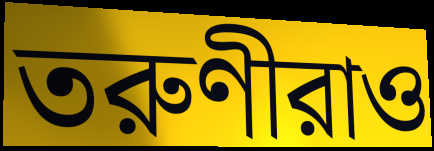
তরুণীরাও